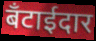
बँटाईदार